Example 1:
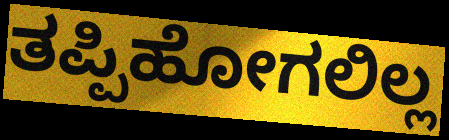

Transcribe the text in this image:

ತಪ್ಪಿಹೋಗಲಿಲ್ಲ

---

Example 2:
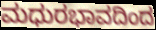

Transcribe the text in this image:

ಮಧುರಭಾವದಿಂದ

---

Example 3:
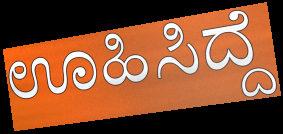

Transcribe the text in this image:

ಊಹಿಸಿದ್ದೆ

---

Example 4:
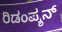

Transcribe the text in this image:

ರಿಡಂಪ್ಶನ್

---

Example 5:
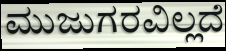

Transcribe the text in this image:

ಮುಜುಗರವಿಲ್ಲದೆ